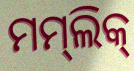
ମମ୍‌ଲିକ୍